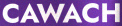
CAWACH